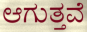
ಆಗುತ್ತವೆ